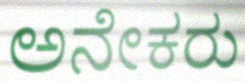
ಅನೇಕರು